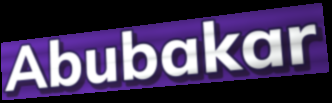
Abubakar